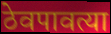
ठेवपावत्या